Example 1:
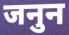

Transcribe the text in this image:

जनुन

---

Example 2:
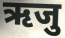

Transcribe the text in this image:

ऋजु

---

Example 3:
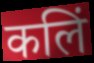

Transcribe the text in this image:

कलिं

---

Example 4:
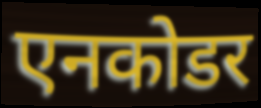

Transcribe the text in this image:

एनकोडर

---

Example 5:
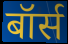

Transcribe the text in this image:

बॉर्स